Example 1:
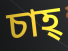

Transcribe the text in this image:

চাহ্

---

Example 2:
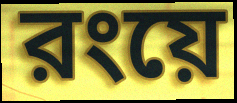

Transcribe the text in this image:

রংয়ে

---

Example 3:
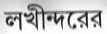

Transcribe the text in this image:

লখীন্দরের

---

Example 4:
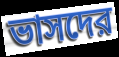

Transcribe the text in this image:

ভাসদের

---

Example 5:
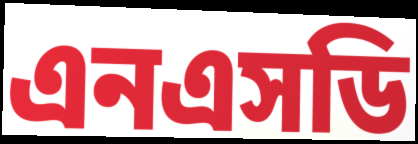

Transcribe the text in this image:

এনএসডি